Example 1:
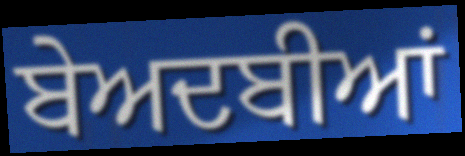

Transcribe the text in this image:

ਬੇਅਦਬੀਆਂ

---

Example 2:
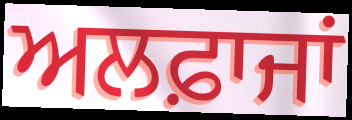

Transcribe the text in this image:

ਅਲਫ਼ਾਜਾਂ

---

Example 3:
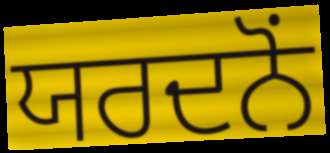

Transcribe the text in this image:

ਯਰਦਨੋਂ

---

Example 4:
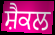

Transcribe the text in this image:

ਸ਼ੈਕਲ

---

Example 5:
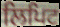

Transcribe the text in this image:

ਲਿਪਿਟ